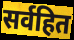
सर्वहित